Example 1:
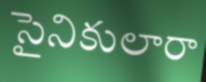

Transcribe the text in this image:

సైనికులారా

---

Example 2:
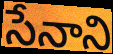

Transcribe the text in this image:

సేనాని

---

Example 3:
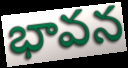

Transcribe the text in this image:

భావన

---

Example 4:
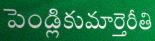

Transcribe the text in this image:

పెండ్లికుమార్తెరీతి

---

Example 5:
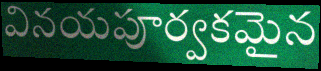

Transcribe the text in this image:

వినయపూర్వకమైన